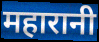
महारानी